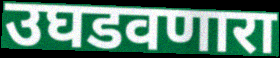
उघडवणारा